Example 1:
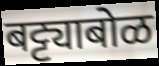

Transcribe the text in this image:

बट्ट्याबोळ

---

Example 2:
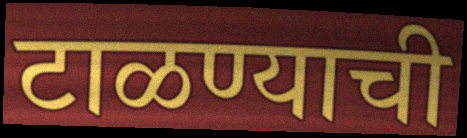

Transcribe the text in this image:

टाळण्याची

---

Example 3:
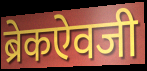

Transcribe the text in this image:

ब्रेकऐवजी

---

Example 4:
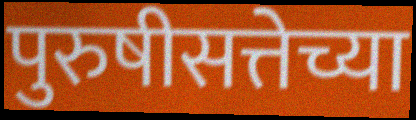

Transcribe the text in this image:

पुरुषीसत्तेच्या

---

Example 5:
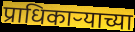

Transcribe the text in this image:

प्राधिकाऱ्याच्या